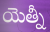
యెత్నీ